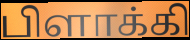
பிளாக்கி